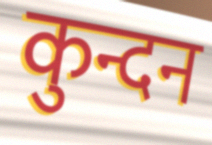
कुन्दन